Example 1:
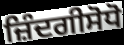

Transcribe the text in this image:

ਜ਼ਿੰਦਗੀਸੋਧੋ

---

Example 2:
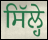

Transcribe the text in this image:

ਸਿੱਲ੍ਹੇ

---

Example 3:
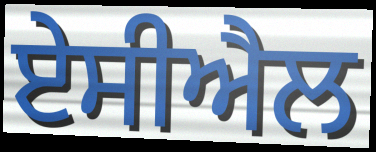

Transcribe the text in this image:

ਏਸੀਐਲ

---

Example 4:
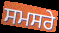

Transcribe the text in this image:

ਸਮਸਰੇ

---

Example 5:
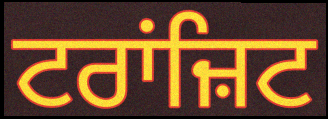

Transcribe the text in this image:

ਟਰਾਂਜ਼ਿਟ